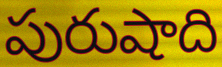
పురుషాది